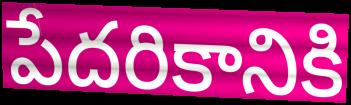
పేదరికానికి